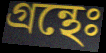
গ্রন্থেঃ